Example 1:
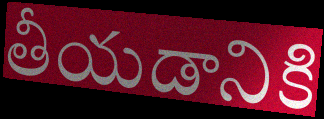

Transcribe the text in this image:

తీయడానికి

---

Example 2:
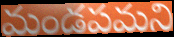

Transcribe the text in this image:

మండపమని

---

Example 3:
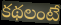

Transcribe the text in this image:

కథలంటే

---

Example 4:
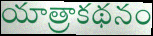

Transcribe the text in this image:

యాత్రాకథనం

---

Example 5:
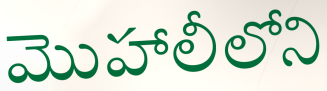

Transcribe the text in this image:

మొహాలీలోని